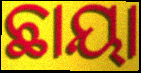
ଛାୟା